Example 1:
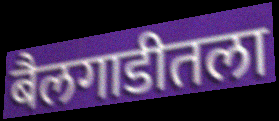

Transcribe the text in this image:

बैलगाडीतला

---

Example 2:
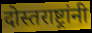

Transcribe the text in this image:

दोस्तराष्ट्रांनी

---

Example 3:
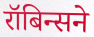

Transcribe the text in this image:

रॉबिन्सने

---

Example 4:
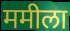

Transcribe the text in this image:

ममीला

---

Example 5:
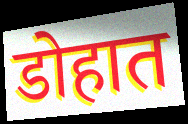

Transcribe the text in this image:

डोहात